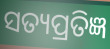
ସତ୍ୟପ୍ରତିଜ୍ଞ